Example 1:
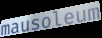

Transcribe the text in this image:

mausoleum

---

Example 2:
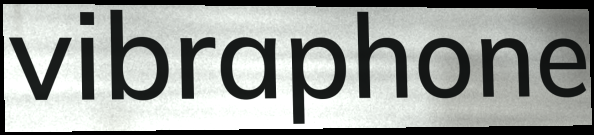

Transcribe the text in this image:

vibraphone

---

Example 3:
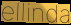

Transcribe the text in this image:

ellinda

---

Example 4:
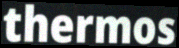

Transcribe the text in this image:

thermos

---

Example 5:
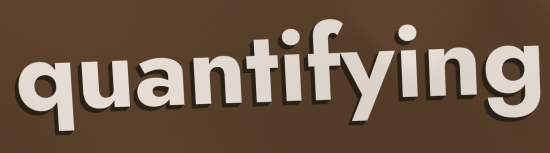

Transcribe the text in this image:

quantifying